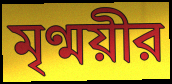
মৃণ্ময়ীর